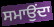
ਸਮਾਉਂਦਾ